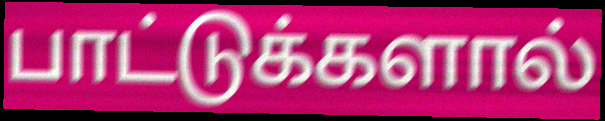
பாட்டுக்களால்